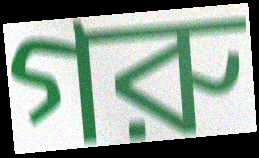
গৰু